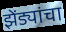
झेंड्यांचा